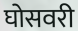
घोसवरी